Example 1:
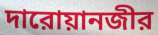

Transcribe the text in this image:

দারোয়ানজীর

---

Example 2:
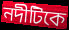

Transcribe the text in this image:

নদীটিকে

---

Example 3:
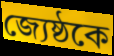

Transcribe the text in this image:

জ্যেষ্ঠকে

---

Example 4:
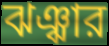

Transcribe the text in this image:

ঝঞ্ঝার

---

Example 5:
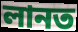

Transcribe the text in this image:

লানত